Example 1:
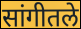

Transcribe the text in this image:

सांगीतले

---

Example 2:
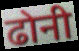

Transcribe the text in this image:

ढोनी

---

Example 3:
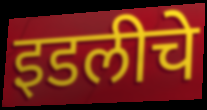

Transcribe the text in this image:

इडलीचे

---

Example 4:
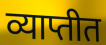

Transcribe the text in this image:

व्याप्तीत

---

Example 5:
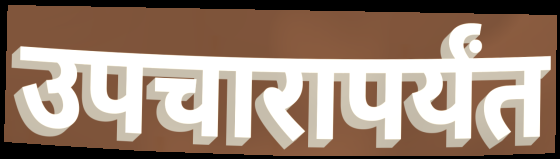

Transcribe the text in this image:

उपचारापर्यंत